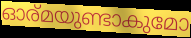
ഓര്മയുണ്ടാകുമോ